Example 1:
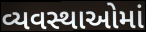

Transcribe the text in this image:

વ્યવસ્થાઓમાં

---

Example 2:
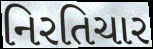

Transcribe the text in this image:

નિરતિચાર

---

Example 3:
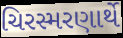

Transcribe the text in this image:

ચિરસ્મરણાર્થે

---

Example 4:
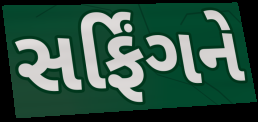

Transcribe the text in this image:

સર્ફિંગને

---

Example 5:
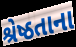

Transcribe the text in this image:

શ્રેષ્ઠતાના